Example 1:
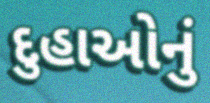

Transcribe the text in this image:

દુહાઓનું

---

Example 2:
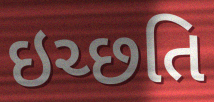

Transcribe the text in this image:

ઇચ્છતિ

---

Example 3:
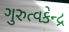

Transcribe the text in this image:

ગુરુત્વકેન્દ્ર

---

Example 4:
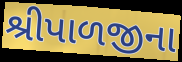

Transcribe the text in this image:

શ્રીપાળજીના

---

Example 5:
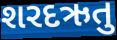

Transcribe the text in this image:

શરદઋતુ